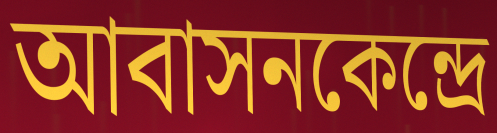
আবাসনকেন্দ্রে